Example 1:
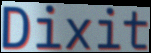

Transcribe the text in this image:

Dixit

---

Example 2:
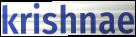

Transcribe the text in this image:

krishnae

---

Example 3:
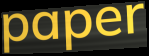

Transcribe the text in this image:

paper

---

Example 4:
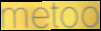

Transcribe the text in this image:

metoo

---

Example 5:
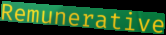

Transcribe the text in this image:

Remunerative